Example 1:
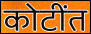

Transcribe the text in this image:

कोटींत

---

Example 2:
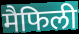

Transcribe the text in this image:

मैफिली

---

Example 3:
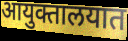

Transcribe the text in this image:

आयुक्तालयात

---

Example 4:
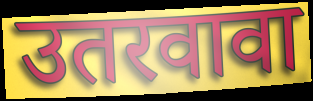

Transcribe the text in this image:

उतरवावा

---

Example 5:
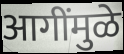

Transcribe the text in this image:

आगींमुळे